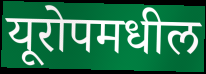
यूरोपमधील